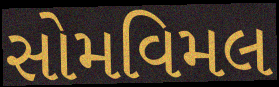
સોમવિમલ